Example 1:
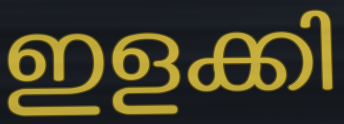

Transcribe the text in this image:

ഇളക്കി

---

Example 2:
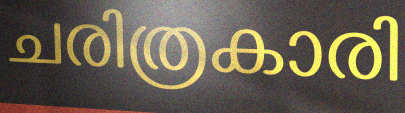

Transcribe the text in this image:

ചരിത്രകാരി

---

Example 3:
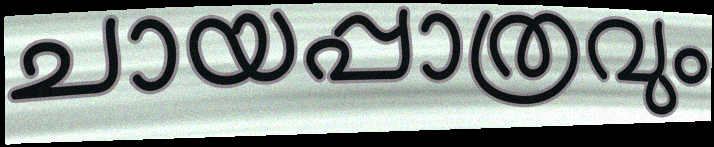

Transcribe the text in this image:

ചായപ്പാത്രവും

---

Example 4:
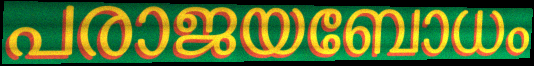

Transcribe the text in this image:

പരാജയബോധം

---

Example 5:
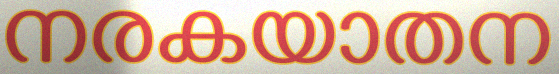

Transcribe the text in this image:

നരകയാതന